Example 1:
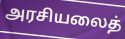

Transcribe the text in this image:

அரசியலைத்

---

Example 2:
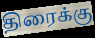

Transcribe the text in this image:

திரைக்கு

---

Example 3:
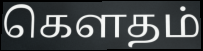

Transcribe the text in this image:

கௌதம்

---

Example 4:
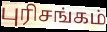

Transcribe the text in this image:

புரிசங்கம்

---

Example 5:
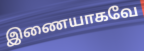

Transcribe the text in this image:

இணையாகவே